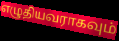
எழுதியவராகவும்